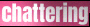
chattering